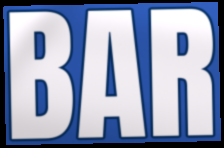
BAR